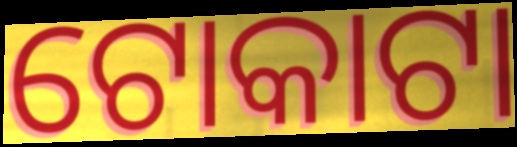
ଟୋକାଟା